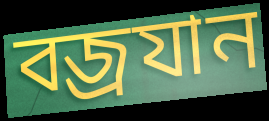
বজ্রযান